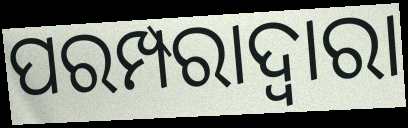
ପରମ୍ପରାଦ୍ବାରା